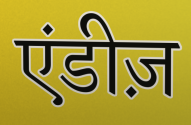
एंडीज़